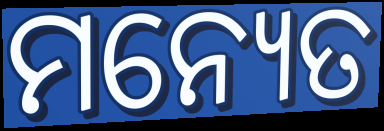
ମନ୍ୟେତ